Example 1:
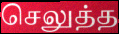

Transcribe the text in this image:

செலுத்த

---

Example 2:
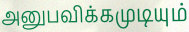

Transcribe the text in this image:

அனுபவிக்கமுடியும்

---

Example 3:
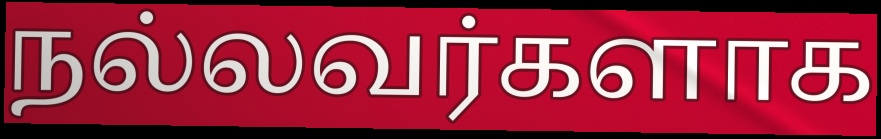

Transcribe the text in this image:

நல்லவர்களாக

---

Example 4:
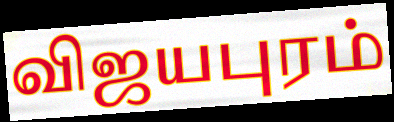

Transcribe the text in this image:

விஜயபுரம்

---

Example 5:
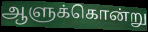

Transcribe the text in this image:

ஆளுக்கொன்று